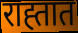
राह्तात